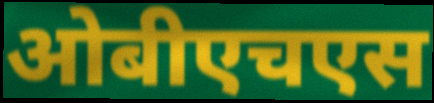
ओबीएचएस